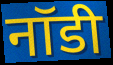
नॉडी